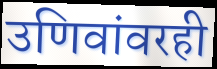
उणिवांवरही